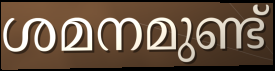
ശമനമുണ്ട്